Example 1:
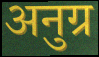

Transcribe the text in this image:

अनुग्र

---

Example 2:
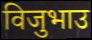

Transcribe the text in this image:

विजुभाउ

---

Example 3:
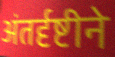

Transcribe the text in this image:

अंतर्दृष्टीने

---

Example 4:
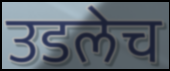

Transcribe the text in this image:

उडलेच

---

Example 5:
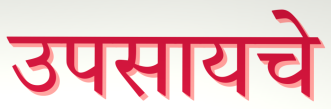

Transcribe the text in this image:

उपसायचे